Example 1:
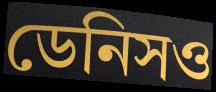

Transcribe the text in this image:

ডেনিসও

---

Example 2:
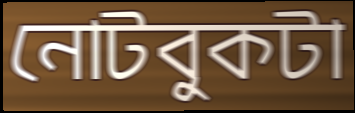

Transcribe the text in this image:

নোটবুকটা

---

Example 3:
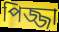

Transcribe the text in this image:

পিজ্জা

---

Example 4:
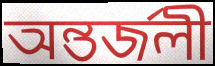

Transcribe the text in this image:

অন্তর্জলী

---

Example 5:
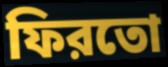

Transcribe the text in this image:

ফিরতো